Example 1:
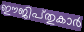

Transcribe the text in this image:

ഈജിപ്‌തുകാർ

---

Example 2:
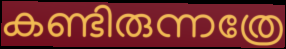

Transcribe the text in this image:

കണ്ടിരുന്നത്രേ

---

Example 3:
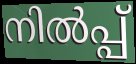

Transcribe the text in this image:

നിൽപ്പ്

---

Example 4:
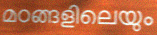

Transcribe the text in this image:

മഠങ്ങളിലെയും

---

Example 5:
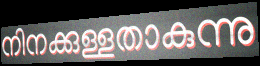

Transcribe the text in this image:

നിനക്കുള്ളതാകുന്നു